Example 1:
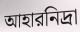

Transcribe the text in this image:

আহারনিদ্রা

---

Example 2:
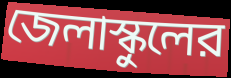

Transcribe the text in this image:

জেলাস্কুলের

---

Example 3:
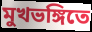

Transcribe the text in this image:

মুখভঙ্গিতে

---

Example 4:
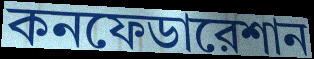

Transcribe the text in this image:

কনফেডারেশান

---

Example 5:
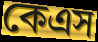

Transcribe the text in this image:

কেএস